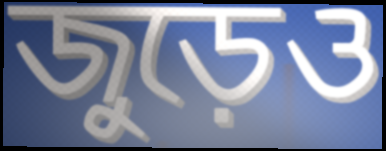
জুড়েও